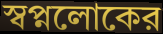
স্বপ্নলোকের